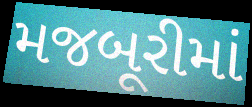
મજબૂરીમાં